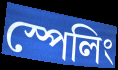
স্পেলিং